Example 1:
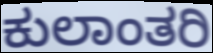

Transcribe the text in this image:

ಕುಲಾಂತರಿ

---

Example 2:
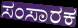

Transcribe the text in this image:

ಸಂಸಾರಕ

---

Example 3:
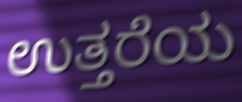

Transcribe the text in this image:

ಉತ್ತರೆಯ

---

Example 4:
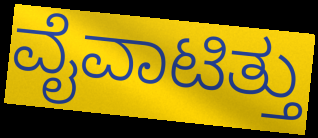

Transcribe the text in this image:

ವೈವಾಟಿತ್ತು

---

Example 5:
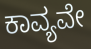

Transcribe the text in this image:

ಕಾವ್ಯವೇ